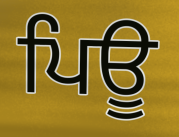
ਪਿਊ